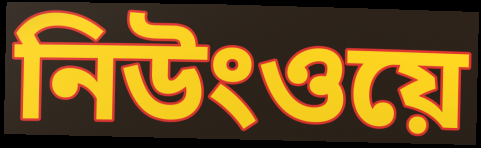
নিউংওয়ে